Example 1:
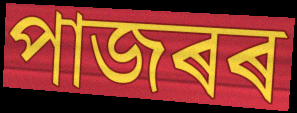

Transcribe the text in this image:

পাজৰৰ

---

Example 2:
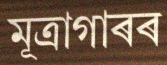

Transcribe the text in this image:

মূত্ৰাগাৰৰ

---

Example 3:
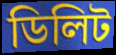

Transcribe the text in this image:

ডিলিট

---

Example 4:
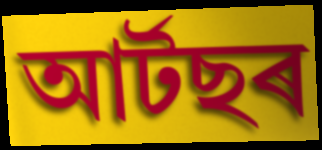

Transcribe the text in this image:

আৰ্টছৰ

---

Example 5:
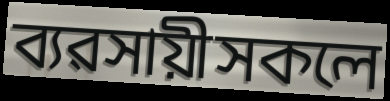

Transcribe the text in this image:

ব্যৱসায়ীসকলে